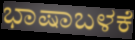
ಭಾಷಾಬಳಕೆ